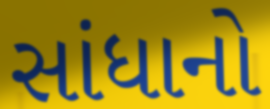
સાંધાનો